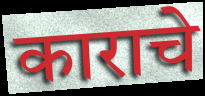
काराचे